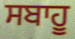
ਸਬਾਹੂ